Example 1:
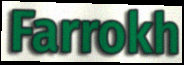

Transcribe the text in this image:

Farrokh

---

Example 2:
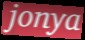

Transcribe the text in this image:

jonya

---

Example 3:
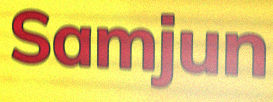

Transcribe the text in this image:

Samjun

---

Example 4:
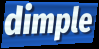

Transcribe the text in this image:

dimple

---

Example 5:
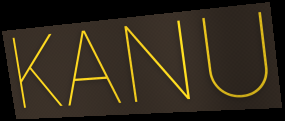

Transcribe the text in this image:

KANU